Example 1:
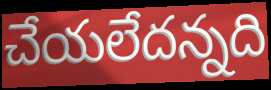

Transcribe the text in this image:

చేయలేదన్నది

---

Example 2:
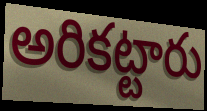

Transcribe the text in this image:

అరికట్టారు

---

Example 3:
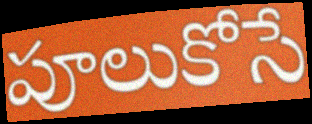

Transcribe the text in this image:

పూలుకోసే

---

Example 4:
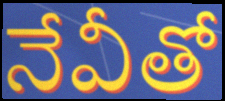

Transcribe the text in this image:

నేవీతో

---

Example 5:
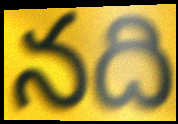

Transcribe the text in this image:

నది